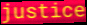
justice